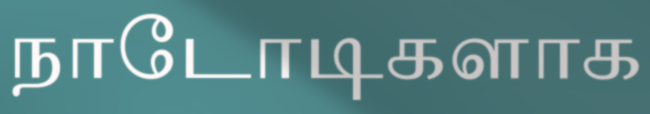
நாடோடிகளாக